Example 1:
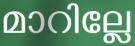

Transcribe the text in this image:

മാറില്ലേ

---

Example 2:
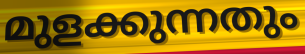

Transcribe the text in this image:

മുളക്കുന്നതും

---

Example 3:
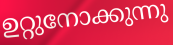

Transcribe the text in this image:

ഉറ്റുനോക്കുന്നു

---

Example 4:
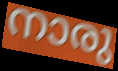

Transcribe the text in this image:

നാരു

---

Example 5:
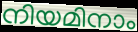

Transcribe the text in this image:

നിയമിനാം